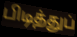
பிடித்துப்